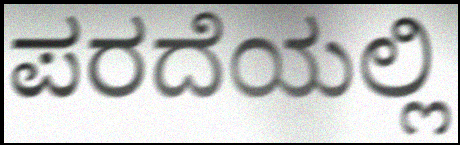
ಪರದೆಯಲ್ಲಿ